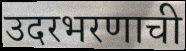
उदरभरणाची